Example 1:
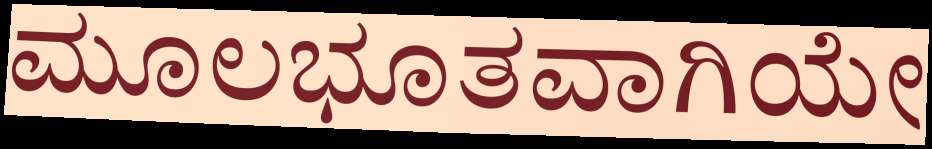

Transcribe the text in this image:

ಮೂಲಭೂತವಾಗಿಯೇ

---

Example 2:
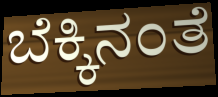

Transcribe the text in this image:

ಬೆಕ್ಕಿನಂತೆ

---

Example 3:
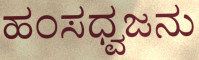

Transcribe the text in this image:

ಹಂಸಧ್ವಜನು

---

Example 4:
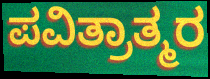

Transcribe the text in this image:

ಪವಿತ್ರಾತ್ಮರ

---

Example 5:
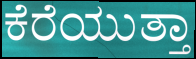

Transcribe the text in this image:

ಕೆರೆಯುತ್ತಾ